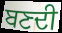
ਬਣਦੀ